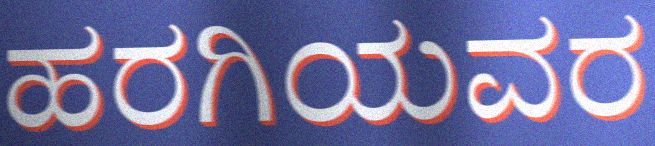
ಹರಗಿಯವರ